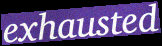
exhausted